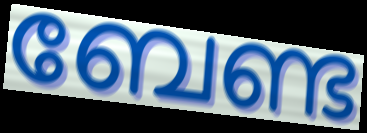
ബേണ്ട